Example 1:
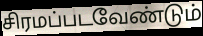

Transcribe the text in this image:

சிரமப்படவேண்டும்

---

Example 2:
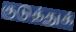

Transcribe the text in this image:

குடுத்துக்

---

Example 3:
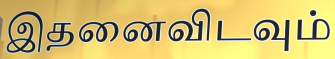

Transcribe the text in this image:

இதனைவிடவும்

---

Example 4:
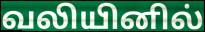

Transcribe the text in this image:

வலியினில்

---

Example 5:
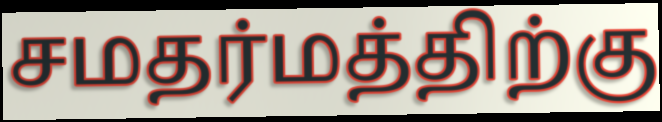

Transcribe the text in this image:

சமதர்மத்திற்கு